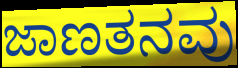
ಜಾಣತನವು